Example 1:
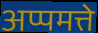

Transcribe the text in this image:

अप्पमत्ते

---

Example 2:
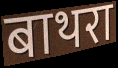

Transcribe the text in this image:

बाथरा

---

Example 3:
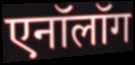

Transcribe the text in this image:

एनॉलॉग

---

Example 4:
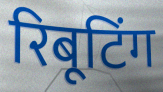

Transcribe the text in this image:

रिबूटिंग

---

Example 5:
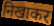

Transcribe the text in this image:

निखाकर